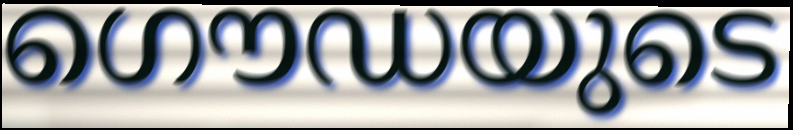
ഗൌഡയുടെ